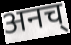
अनच्